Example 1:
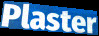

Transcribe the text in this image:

Plaster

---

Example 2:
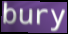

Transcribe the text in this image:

bury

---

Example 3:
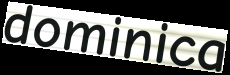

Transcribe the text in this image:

dominica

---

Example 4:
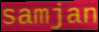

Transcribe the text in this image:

samjan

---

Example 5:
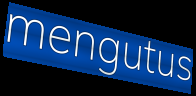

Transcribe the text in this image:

mengutus